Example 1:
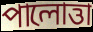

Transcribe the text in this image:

পালোত্তা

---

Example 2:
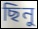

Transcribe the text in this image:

ছিনু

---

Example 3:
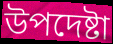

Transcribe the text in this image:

উপদেষ্টা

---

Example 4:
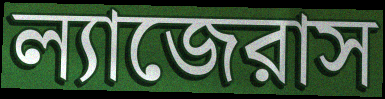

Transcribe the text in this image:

ল্যাজেরাস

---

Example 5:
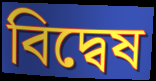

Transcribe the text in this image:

বিদ্বেষ